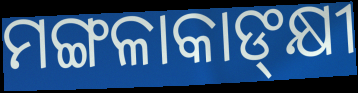
ମଙ୍ଗଳାକାଙ୍କ୍ଷୀ